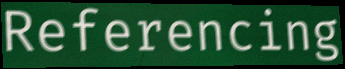
Referencing